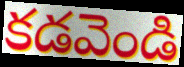
కడవెండి